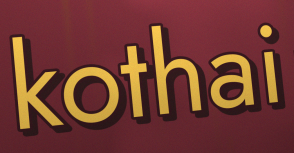
kothai